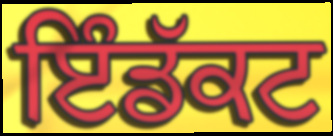
ਇੰਡੱਕਟ